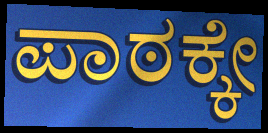
ಪಾಠಕ್ಕೇ